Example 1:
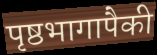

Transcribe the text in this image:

पृष्ठभागापैकी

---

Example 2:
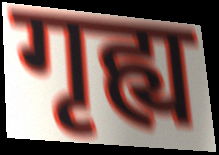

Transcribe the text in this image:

गृह्य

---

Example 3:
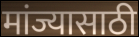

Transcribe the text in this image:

मांज्यासाठी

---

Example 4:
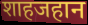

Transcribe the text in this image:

शाहजहान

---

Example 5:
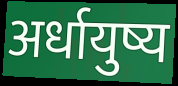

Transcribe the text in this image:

अर्धायुष्य